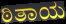
ಠಿತಾಯ